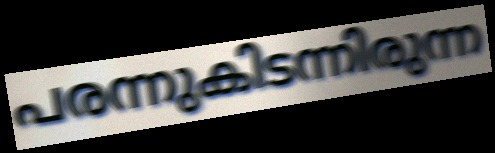
പരന്നുകിടന്നിരുന്ന